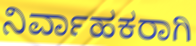
ನಿರ್ವಾಹಕರಾಗಿ